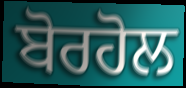
ਬੋਰਹੋਲ